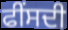
ਫੀਂਸਦੀ